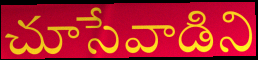
చూసేవాడిని